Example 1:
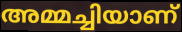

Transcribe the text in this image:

അമ്മച്ചിയാണ്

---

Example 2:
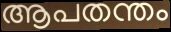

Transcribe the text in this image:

ആപതന്തം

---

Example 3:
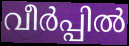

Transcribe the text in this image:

വീർപ്പിൽ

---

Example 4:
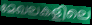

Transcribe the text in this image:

മേഖലകളിലെ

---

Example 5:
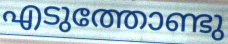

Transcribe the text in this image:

എടുത്തോണ്ടു